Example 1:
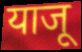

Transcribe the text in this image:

याजू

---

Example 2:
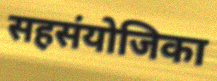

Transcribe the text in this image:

सहसंयोजिका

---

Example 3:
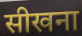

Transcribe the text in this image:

सीखना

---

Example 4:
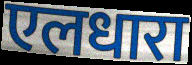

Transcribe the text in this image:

एलधारा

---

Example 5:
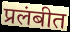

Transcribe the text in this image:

प्रलंबीत